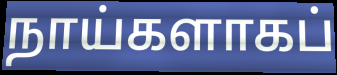
நாய்களாகப்